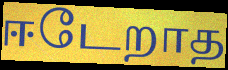
ஈடேறாத